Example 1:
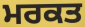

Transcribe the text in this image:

ਮਰਕਤ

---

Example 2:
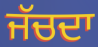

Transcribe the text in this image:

ਜੱਚਦਾ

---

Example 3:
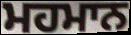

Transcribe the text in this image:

ਮਹਮਾਨ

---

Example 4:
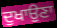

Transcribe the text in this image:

ਦੁਖਾਉਣਾ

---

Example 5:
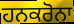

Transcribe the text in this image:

ਹਨਕਰੋਨਾ